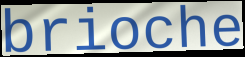
brioche